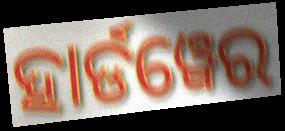
ହାର୍ଡୱେର